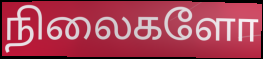
நிலைகளோ